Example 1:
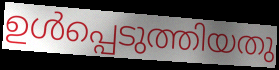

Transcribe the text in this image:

ഉൾപ്പെടുത്തിയതു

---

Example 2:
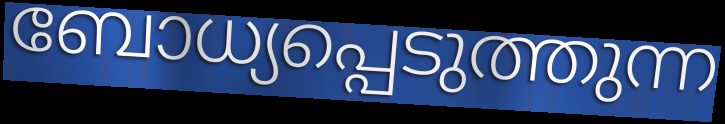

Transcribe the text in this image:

ബോധ്യപ്പെടുത്തുന്ന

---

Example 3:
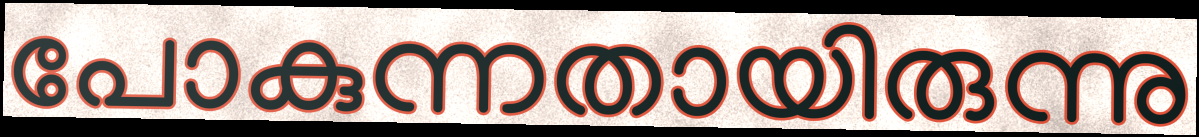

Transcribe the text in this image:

പോകുന്നതായിരുന്നു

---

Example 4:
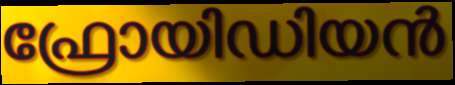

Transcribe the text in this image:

ഫ്രോയിഡിയൻ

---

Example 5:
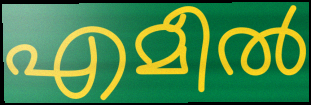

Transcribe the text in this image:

എമീൽ